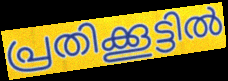
പ്രതിക്കൂട്ടിൽ